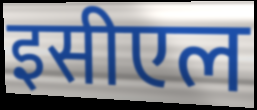
इसीएल